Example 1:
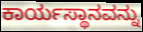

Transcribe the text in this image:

ಕಾರ್ಯಸ್ಥಾನವನ್ನು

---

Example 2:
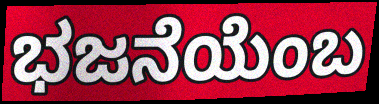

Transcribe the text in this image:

ಭಜನೆಯೆಂಬ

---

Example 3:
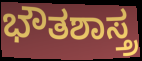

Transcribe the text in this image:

ಭೌತಶಾಸ್ತ್ರ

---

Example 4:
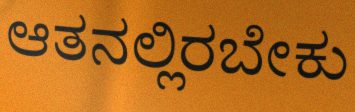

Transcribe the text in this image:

ಆತನಲ್ಲಿರಬೇಕು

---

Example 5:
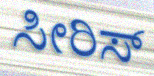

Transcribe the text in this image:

ಸೀರಿಸ್